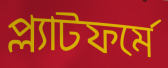
প্ল্যাটফর্মে